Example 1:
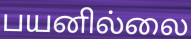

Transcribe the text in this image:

பயனில்லை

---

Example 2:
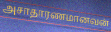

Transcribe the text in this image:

அசாதாரணமானவன்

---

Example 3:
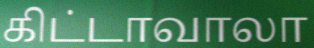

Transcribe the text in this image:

கிட்டாவாலா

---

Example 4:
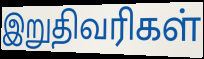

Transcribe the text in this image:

இறுதிவரிகள்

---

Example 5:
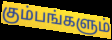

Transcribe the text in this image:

கும்பங்களும்